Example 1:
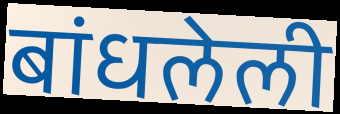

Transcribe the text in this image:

बांधलेली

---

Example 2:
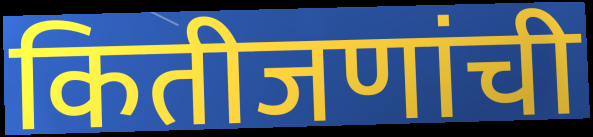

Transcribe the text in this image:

कितीजणांची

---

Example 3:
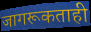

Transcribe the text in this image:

जागरूकताही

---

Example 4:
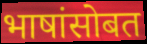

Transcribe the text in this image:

भाषांसोबत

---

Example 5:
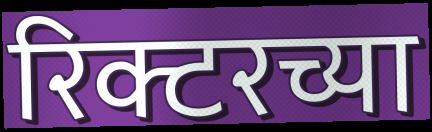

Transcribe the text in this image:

रिक्टरच्या